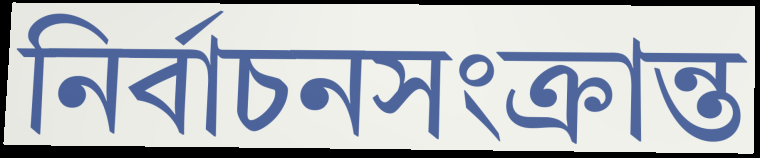
নির্বাচনসংক্রান্ত